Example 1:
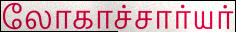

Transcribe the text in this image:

லோகாச்சார்யர்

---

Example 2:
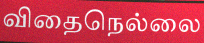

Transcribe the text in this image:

விதைநெல்லை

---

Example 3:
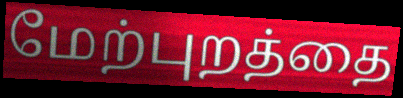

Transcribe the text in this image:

மேற்புறத்தை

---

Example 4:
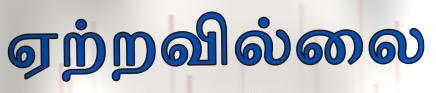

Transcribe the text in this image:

ஏற்றவில்லை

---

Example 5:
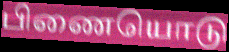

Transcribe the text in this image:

பிணையொடு